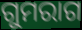
ଗୁମରାଗ